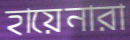
হায়েনারা